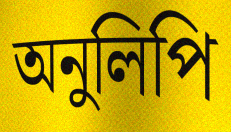
অনুলিপি